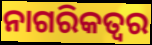
ନାଗରିକତ୍ଵର